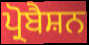
ਪ੍ਰੋਬੈਸ਼ਨ